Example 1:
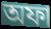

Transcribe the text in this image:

অফা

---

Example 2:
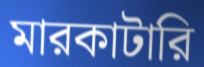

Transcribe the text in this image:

মারকাটারি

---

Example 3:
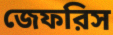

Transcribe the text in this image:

জেফরিস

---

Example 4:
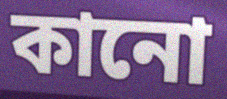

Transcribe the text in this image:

কানো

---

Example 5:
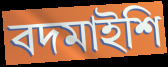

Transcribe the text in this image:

বদমাইশি